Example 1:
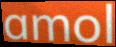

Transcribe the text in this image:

amol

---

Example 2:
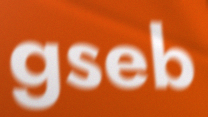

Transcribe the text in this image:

gseb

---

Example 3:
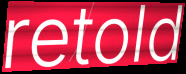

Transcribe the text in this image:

retold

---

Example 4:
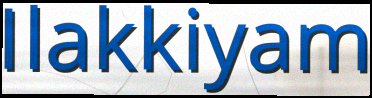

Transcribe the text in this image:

Ilakkiyam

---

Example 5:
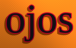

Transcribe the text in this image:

ojos